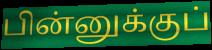
பின்னுக்குப்